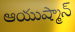
ఆయుష్మాన్